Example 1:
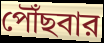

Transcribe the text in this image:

পৌঁছবার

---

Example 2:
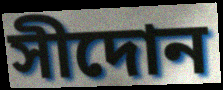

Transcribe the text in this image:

সীদোন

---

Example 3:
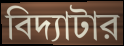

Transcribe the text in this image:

বিদ্যাটার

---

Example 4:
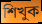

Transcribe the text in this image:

শিখুক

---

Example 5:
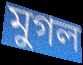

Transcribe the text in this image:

মুগল